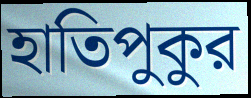
হাতিপুকুর